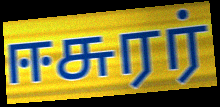
ஈசுரர்